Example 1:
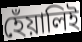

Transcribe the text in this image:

হেঁয়ালিই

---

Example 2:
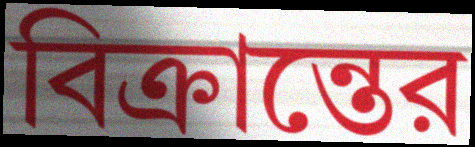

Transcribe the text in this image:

বিক্রান্তের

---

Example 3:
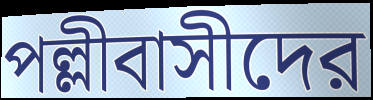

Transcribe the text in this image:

পল্লীবাসীদের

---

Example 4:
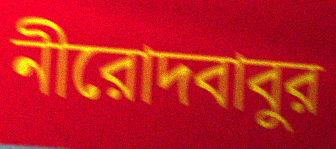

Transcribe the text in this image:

নীরোদবাবুর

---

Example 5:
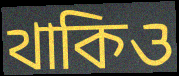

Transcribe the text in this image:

থাকিও